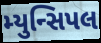
મ્યુન્સિપલ